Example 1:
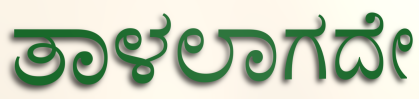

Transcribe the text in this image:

ತಾಳಲಾಗದೇ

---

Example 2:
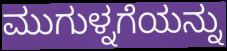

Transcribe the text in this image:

ಮುಗುಳ್ನಗೆಯನ್ನು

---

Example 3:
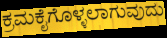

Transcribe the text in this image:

ಕ್ರಮಕೈಗೊಳ್ಳಲಾಗುವುದು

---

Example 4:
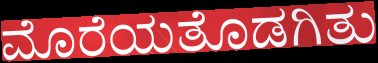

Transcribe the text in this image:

ಮೊರೆಯತೊಡಗಿತು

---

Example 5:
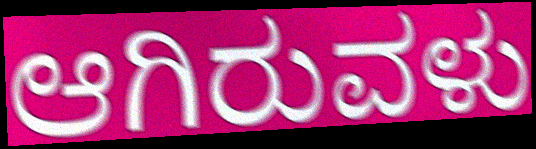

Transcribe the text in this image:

ಆಗಿರುವಳು